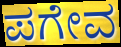
ಪಗೇವ